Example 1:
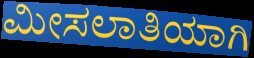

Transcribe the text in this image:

ಮೀಸಲಾತಿಯಾಗಿ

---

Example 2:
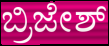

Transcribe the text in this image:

ಬ್ರಿಜೇಶ್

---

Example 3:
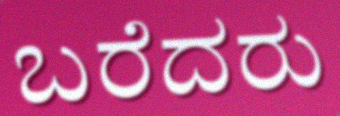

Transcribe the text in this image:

ಬರೆದರು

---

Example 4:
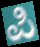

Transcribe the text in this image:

ಪಿ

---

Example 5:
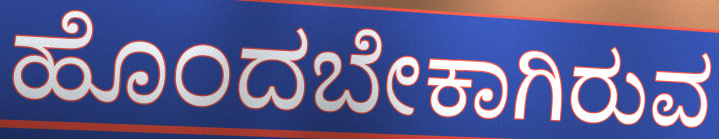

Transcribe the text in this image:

ಹೊಂದಬೇಕಾಗಿರುವ